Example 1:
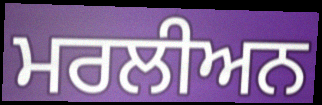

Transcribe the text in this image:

ਮਰਲੀਅਨ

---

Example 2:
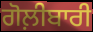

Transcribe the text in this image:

ਗੋਲ਼ੀਬਾਰੀ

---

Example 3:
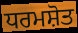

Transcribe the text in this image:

ਧਰਮਸ਼ੋਤ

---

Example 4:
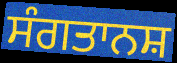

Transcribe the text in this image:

ਸੰਗਤਾਨਸ਼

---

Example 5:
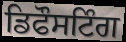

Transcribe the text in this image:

ਡਿਫੌਸਟਿੰਗ